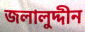
জলালুদ্দীন